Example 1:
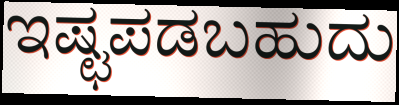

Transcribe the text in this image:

ಇಷ್ಟಪಡಬಹುದು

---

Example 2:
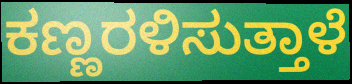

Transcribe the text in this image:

ಕಣ್ಣರಳಿಸುತ್ತಾಳೆ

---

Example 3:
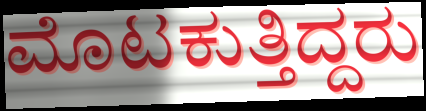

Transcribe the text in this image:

ಮೊಟಕುತ್ತಿದ್ದರು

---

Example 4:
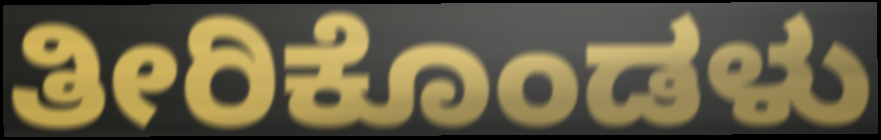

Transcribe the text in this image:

ತೀರಿಕೊಂಡಳು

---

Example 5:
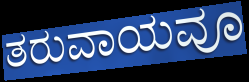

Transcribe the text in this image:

ತರುವಾಯವೂ